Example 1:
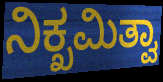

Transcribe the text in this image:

ನಿಕ್ಖಮಿತ್ವಾ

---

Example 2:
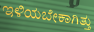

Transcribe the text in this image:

ಇಳಿಯಬೇಕಾಗಿತ್ತು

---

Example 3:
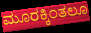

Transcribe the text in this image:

ಮೂರಕ್ಕಿಂತಲೂ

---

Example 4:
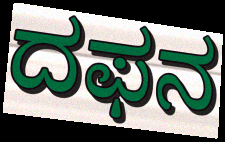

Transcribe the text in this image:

ದಫನ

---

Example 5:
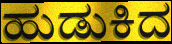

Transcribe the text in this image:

ಹುಡುಕಿದ